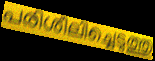
പരിശീലിച്ചെടുത്തു